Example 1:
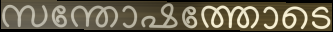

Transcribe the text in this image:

സന്തോഷത്തോടെ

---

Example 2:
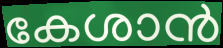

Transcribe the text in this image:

കേശാൻ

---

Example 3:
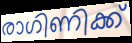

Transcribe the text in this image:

രാഗിണിക്ക്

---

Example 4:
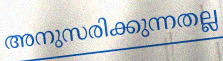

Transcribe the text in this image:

അനുസരിക്കുന്നതല്ല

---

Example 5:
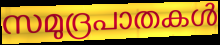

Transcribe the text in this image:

സമുദ്രപാതകൾ